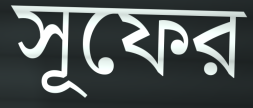
সূফের